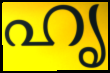
ഹൃ